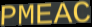
PMEAC